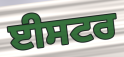
ਈਸਟਰ